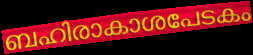
ബഹിരാകാശപേടകം